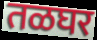
तळघर